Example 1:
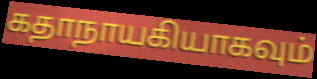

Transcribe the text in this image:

கதாநாயகியாகவும்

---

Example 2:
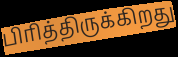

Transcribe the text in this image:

பிரித்திருக்கிறது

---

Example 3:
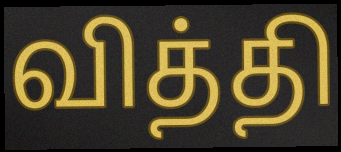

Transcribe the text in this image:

வித்தி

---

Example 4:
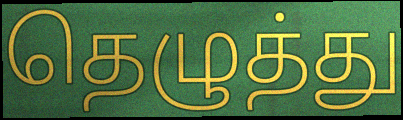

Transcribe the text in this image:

தெழுத்து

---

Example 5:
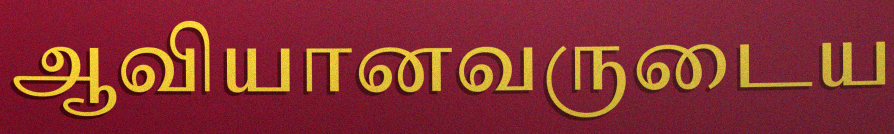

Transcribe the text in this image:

ஆவியானவருடைய